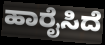
ಹಾರೈಸಿದೆ